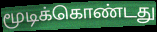
மூடிக்கொண்டது